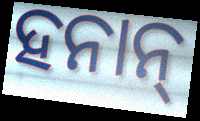
ହନାନ୍